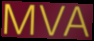
MVA